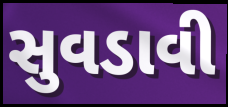
સુવડાવી